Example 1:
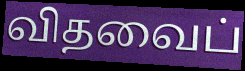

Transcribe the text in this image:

விதவைப்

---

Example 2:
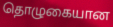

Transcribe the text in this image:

தொழுகையான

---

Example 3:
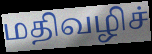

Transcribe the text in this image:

மதிவழிச்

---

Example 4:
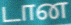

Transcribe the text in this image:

டான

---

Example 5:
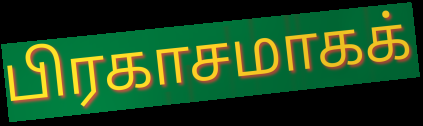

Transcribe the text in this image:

பிரகாசமாகக்